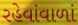
રહેવાંવાળાં